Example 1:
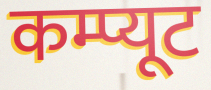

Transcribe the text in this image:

कम्प्यूट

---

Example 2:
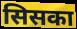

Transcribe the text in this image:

सिसका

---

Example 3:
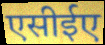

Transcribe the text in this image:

एसीईए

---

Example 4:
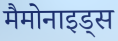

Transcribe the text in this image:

मैमोनाइड्स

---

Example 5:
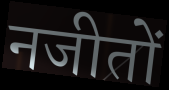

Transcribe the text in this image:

नजीतों